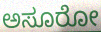
ಅಸೂರೋ